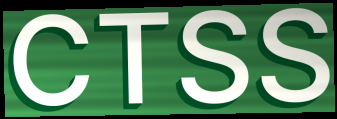
CTSS